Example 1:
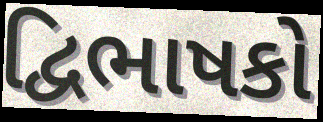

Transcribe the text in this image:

દ્વિભાષકો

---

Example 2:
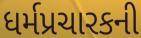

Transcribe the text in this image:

ધર્મપ્રચારકની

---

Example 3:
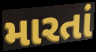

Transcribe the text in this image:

મારતાં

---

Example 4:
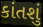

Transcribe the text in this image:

કાંતશું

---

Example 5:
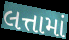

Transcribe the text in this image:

લત્તામાં